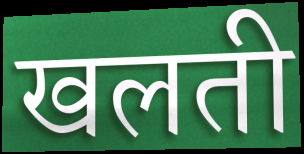
खलती